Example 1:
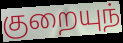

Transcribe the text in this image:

குறையுந்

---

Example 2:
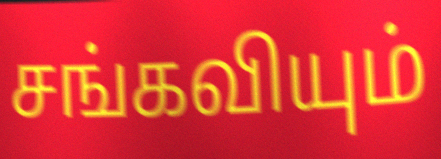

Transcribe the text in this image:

சங்கவியும்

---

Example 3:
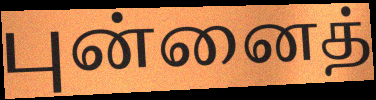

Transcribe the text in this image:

புன்னைத்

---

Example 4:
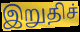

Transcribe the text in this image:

இறுதிச்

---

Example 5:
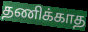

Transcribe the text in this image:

தணிக்காத